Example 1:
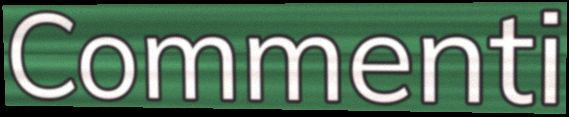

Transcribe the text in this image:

Commenti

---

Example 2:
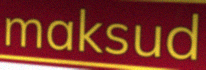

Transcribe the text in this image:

maksud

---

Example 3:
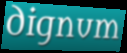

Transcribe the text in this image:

dignum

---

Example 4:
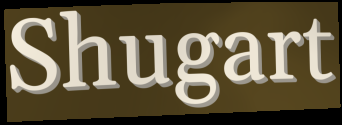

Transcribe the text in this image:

Shugart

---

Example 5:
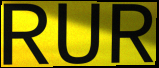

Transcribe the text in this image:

RUR